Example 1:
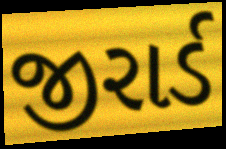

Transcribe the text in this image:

જીરાર્ડ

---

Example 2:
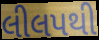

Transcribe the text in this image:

લીલપથી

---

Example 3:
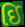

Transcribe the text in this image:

ઈિ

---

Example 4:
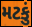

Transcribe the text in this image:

મટકું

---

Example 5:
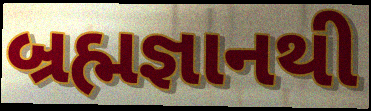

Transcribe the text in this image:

બ્રહ્મજ્ઞાનથી